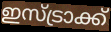
ഇസ്ട്രാക്ക്